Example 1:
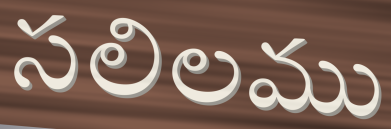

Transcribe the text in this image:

సలిలము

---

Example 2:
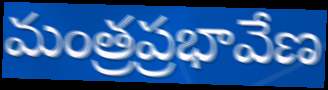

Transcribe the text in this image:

మంత్రప్రభావేణ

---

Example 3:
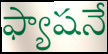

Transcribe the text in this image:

ఫ్యాషనే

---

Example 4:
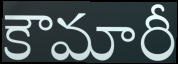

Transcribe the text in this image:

కౌమారీ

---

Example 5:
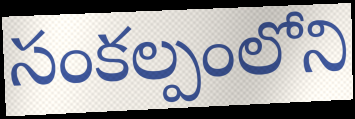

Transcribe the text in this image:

సంకల్పంలోని